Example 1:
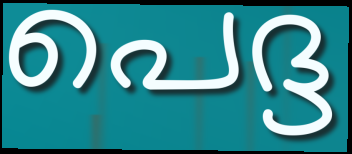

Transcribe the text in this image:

പെദ്ദ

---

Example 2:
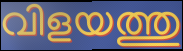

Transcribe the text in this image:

വിളയത്തു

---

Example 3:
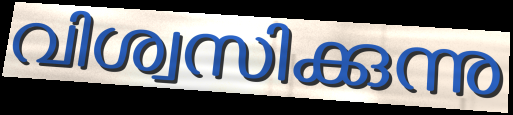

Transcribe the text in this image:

വിശ്വസിക്കുന്നു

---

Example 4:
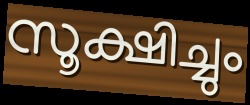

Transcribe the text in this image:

സൂക്ഷിച്ചും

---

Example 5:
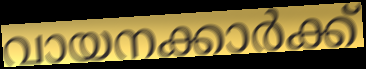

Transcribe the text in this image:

വായനക്കാർക്ക്